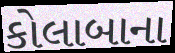
કોલાબાના